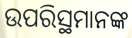
ଉପରିସ୍ଥମାନଙ୍କ